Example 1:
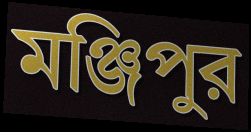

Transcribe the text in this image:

মঞ্জিপুর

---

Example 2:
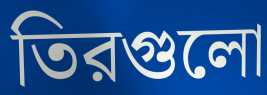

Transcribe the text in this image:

তিরগুলো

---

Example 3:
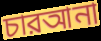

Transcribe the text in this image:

চারআনা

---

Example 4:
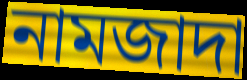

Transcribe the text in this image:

নামজাদা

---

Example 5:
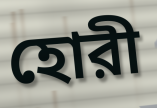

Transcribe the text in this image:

হোরী